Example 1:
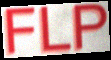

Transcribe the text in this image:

FLP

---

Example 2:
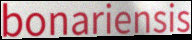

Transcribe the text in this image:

bonariensis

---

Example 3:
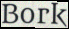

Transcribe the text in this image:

Bork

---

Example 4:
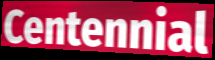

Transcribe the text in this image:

Centennial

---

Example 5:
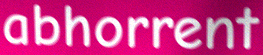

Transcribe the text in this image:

abhorrent